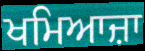
ਖਮਿਆਜ਼ਾ